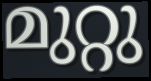
മുറ്റു